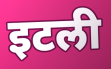
इटली